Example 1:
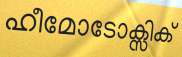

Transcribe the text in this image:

ഹീമോടോക്സിക്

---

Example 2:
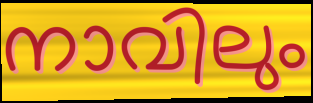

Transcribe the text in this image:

നാവിലും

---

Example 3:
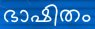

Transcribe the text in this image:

ഭാഷിതം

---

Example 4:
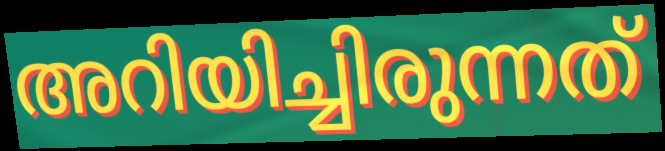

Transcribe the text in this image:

അറിയിച്ചിരുന്നത്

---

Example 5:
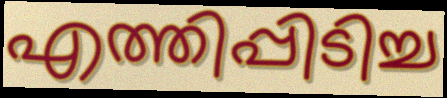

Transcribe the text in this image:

എത്തിപ്പിടിച്ച